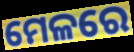
ମେଳରେ